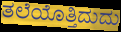
ತಲೆಯೊತ್ತಿದುದು